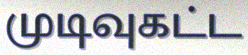
முடிவுகட்ட